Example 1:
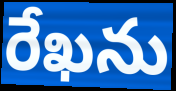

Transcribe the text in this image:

రేఖను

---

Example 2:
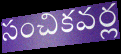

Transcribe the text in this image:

సంచికవర్ల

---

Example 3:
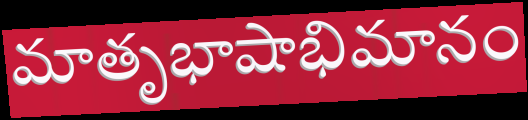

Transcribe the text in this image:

మాతృభాషాభిమానం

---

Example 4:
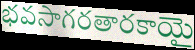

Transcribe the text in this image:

భవసాగరతారకాయై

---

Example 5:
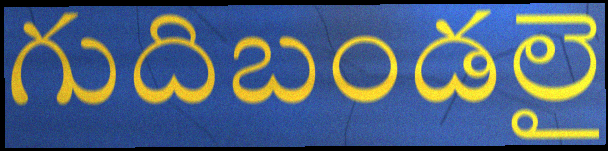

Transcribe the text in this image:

గుదిబండలై